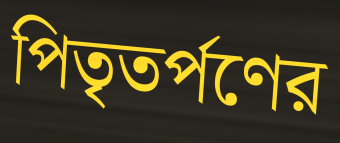
পিতৃতর্পণের